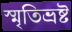
স্মৃতিভ্রষ্ট